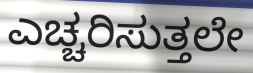
ಎಚ್ಚರಿಸುತ್ತಲೇ